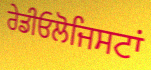
ਰੇਡੀਓਲੋਜਿਸਟਾਂ